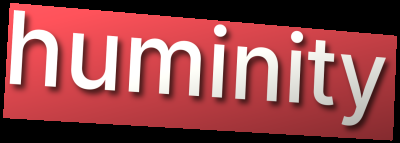
huminity